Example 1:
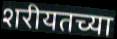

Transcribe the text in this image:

शरीयतच्या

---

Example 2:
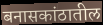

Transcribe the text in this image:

बनासकांठातील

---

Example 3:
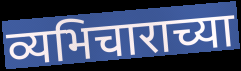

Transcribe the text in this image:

व्यभिचाराच्या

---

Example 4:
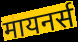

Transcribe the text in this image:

मायनर्स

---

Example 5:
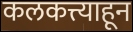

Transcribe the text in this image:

कलकत्त्याहून